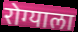
रोग्याला